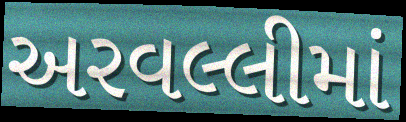
અરવલ્લીમાં